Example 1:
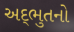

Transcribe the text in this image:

અદ્‌ભુતનો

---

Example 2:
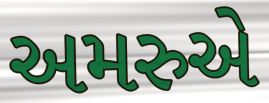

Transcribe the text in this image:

અમરુએ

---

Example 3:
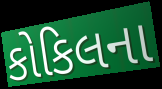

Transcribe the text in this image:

કોકિલના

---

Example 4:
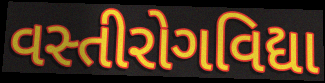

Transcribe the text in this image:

વસ્તીરોગવિદ્યા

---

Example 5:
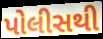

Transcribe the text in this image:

પોલીસથી